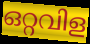
ഒറ്റവിള